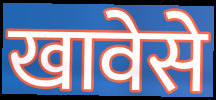
खावेसे